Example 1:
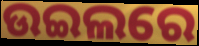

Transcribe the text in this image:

ଉଇଲରେ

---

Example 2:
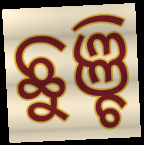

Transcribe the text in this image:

ଛୁଞ୍ଚି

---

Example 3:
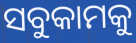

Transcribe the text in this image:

ସବୁକାମକୁ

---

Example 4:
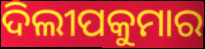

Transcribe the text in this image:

ଦିଲୀପକୁମାର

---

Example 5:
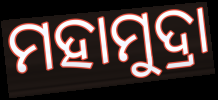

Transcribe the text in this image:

ମହାମୁଦ୍ରା